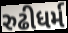
રુઢીધર્મ